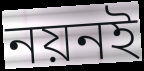
নয়নই